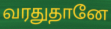
வரதுதானே